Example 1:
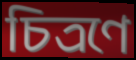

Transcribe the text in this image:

চিত্ৰণে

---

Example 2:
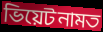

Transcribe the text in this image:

ভিয়েটনামত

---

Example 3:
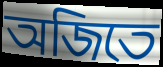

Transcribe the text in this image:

অজিতে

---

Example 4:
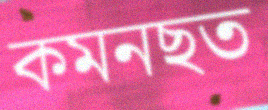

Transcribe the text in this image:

কমনছত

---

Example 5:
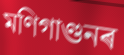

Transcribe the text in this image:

মণিগাণ্ডনৰ